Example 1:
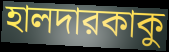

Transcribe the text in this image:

হালদারকাকু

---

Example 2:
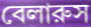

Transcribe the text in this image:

বেলারুস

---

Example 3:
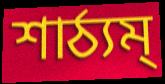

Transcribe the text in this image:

শাঠ্যম্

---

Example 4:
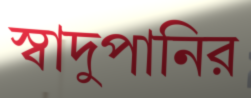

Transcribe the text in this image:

স্বাদুপানির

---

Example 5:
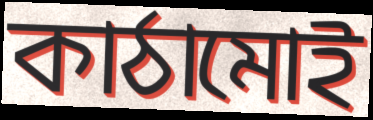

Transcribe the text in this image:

কাঠামোই